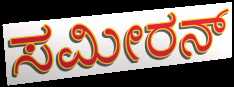
ಸಮೀರನ್